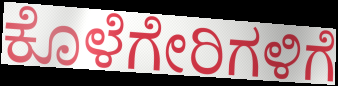
ಕೊಳೆಗೇರಿಗಳಿಗೆ